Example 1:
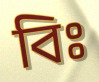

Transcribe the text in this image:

বিঃ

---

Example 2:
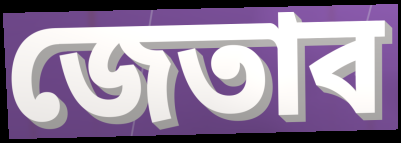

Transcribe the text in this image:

জেতাব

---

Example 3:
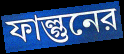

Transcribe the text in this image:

ফাল্গুনের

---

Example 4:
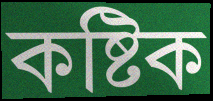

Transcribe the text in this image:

কষ্টিক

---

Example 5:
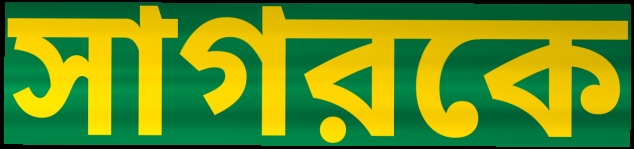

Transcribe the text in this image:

সাগরকে